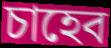
চাহেব